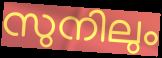
സുനിലും